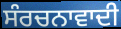
ਸੰਰਚਨਾਵਾਦੀ